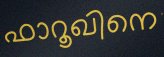
ഫാറൂഖിനെ